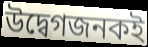
উদ্বেগজনকই